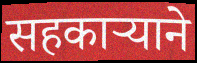
सहकाऱ्याने